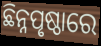
ଛିନ୍ନପୃଷ୍ଠାରେ